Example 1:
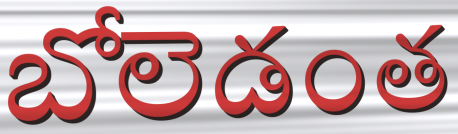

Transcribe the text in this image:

బోలెడంత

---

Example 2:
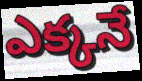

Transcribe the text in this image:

ఎక్కనే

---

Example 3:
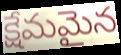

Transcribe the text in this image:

క్షేమమైన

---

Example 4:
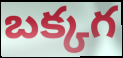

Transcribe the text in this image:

బక్కగ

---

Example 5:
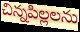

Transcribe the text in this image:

చిన్నపిల్లలను